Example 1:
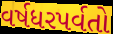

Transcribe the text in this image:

વર્ષધરપર્વતો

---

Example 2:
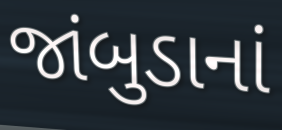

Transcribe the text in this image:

જાંબુડાનાં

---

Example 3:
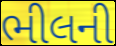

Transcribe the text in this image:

ભીલની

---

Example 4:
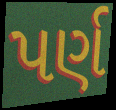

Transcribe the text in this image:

પર્ણ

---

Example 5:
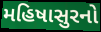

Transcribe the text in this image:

મહિષાસુરનો